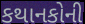
કથાનકોની